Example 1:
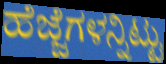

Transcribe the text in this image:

ಹೆಜ್ಜೆಗಳನ್ನಿಟ್ಟು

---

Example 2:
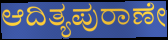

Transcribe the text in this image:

ಆದಿತ್ಯಪುರಾಣೇ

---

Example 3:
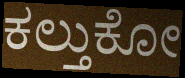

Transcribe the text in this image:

ಕಲ್ತುಕೋ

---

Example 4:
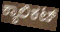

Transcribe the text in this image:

ಕ್ಯಾಲಿಕಟ್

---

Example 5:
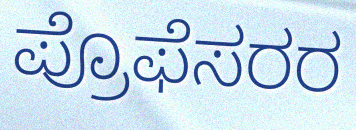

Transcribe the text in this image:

ಪ್ರೊಫೆಸರರ